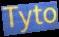
Tyto